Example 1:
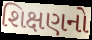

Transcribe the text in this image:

શિક્ષણનો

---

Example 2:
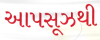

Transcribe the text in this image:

આપસૂઝથી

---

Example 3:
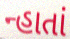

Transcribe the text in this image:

ન્હાતાં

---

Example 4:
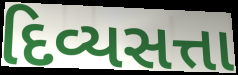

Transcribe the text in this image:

દિવ્યસત્તા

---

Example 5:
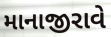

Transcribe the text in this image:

માનાજીરાવે